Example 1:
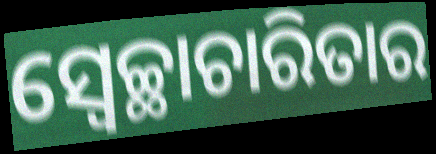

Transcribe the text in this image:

ସ୍ୱେଚ୍ଛାଚାରିତାର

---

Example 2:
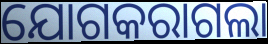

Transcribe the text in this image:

ଯୋଗକରାଗଲା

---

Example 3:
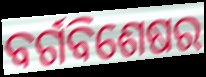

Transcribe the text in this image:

ବର୍ଗବିଶେଷର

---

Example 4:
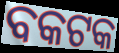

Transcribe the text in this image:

ବକଟକ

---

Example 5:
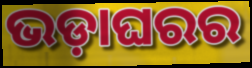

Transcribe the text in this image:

ଭଡ଼ାଘରର